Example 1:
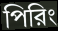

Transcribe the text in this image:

পিরিং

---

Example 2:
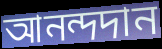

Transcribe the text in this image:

আনন্দদান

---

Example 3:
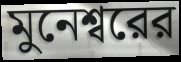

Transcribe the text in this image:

মুনেশ্বরের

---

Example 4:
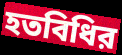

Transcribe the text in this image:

হতবিধির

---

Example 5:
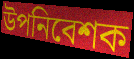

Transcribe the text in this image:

উপনিবেশক